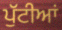
ਪੁੱਟੀਆਂ